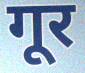
गूर